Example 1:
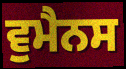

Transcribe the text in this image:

ਵੁਮੈਨਸ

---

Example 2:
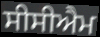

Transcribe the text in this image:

ਸੀਸੀਐਮ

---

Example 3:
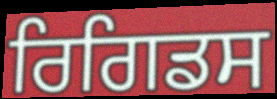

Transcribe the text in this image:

ਰਿਗਿਡਸ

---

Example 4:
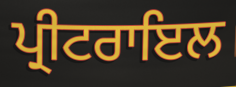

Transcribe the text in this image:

ਪ੍ਰੀਟਰਾਇਲ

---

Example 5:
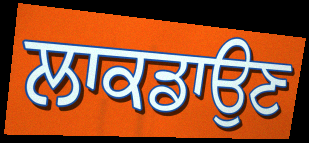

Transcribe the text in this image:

ਲਾਕਡਾਉਣ